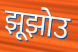
झूझोउ